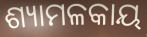
ଶ୍ୟାମଳକାୟ